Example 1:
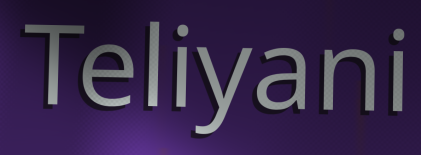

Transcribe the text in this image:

Teliyani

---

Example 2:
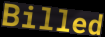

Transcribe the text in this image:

Billed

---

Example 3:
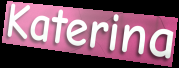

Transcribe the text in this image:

Katerina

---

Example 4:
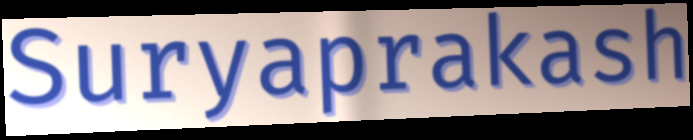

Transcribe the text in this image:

Suryaprakash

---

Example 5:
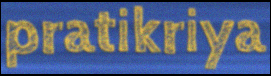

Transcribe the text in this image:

pratikriya